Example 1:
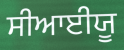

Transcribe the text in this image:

ਸੀਆਈਯੂ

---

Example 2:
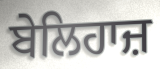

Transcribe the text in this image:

ਬੇਲਿਹਾਜ਼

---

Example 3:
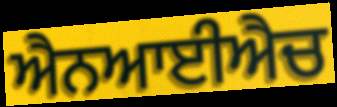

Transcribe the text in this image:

ਐਨਆਈਐਚ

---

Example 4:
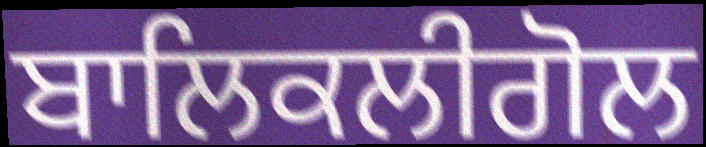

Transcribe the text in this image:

ਬਾਲਿਕਲੀਗੋਲ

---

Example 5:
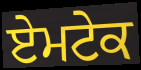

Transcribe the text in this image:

ਏਮਟੇਕ